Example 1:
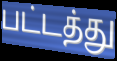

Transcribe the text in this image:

பட்டத்து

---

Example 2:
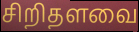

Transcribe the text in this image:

சிறிதளவை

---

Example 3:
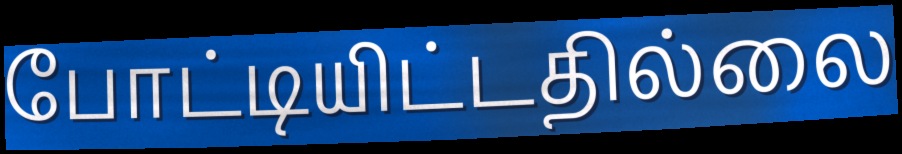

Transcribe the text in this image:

போட்டியிட்டதில்லை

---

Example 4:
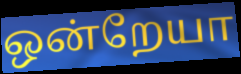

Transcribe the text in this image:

ஒன்றேயா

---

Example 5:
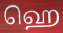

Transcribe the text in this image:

ஹெ